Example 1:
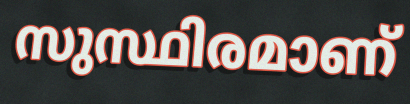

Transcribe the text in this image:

സുസ്ഥിരമാണ്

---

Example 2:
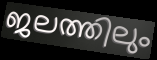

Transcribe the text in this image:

ജലത്തിലും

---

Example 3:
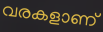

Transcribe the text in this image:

വരകളാണ്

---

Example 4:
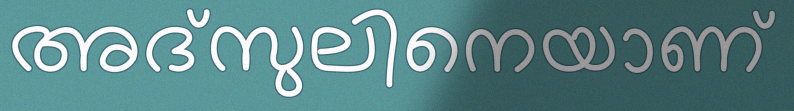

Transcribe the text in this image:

അദ്സുലിനെയാണ്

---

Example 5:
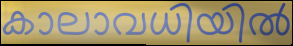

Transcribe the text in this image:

കാലാവധിയിൽ